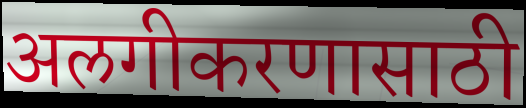
अलगीकरणासाठी